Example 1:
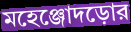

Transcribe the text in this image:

মহেঞ্জোদড়োর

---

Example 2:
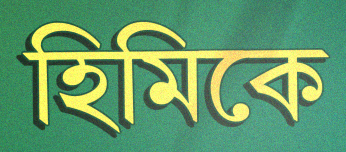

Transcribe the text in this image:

হিমিকে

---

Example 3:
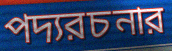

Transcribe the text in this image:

পদ্যরচনার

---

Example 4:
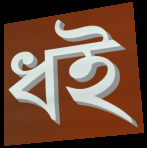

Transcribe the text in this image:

ধই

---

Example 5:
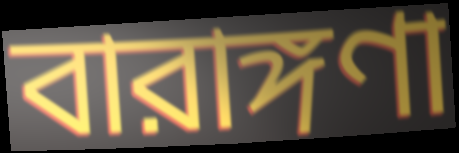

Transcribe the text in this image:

বারাঙ্গণা